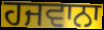
ਹਜਵਾਨਾ